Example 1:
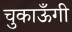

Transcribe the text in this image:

चुकाऊँगी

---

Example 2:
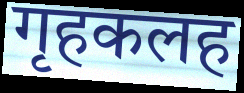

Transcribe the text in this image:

गृहकलह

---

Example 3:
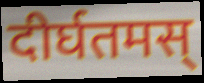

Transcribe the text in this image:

दीर्घतमस्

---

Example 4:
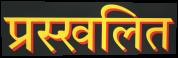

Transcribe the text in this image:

प्रस्खलित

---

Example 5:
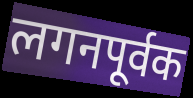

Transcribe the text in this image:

लगनपूर्वक